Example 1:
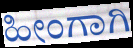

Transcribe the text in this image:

ಹೀಂಗಾಗಿ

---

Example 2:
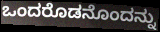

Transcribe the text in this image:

ಒಂದರೊಡನೊಂದನ್ನು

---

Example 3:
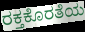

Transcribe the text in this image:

ರಕ್ತಕೊರತೆಯ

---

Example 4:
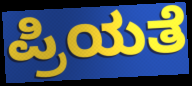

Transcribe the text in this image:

ಪ್ರಿಯತೆ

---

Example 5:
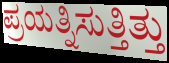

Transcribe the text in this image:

ಪ್ರಯತ್ನಿಸುತ್ತಿತ್ತು